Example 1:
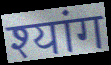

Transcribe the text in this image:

श्यांग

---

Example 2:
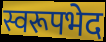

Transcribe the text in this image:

स्वरूपभेद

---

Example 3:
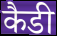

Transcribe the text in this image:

कैडी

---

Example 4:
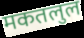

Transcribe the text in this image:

मकतलुल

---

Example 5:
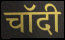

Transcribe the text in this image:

चॉदी